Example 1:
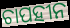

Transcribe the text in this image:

ଚାପହୀନ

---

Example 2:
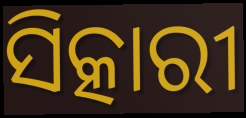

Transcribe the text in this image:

ସିତ୍କାରୀ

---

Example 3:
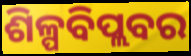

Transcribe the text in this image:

ଶିଳ୍ପବିପ୍ଲବର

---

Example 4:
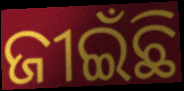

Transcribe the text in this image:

ଜୀଇଁଛି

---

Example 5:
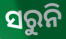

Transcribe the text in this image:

ସରୁନି